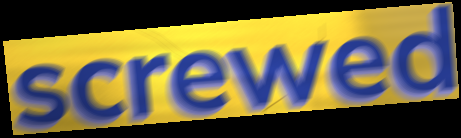
screwed